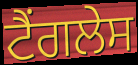
ਟੈਂਗਲੇਸ